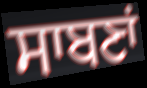
ਸਾਬਣਾਂ